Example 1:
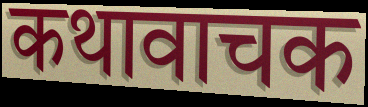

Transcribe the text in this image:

कथावाचक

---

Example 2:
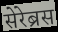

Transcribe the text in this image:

सेरेब्रस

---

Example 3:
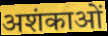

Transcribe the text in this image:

अशंकाओं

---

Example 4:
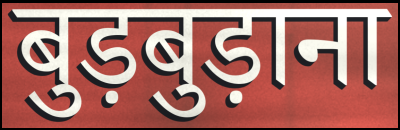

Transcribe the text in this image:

बुड़बुड़ाना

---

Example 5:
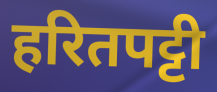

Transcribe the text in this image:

हरितपट्टी